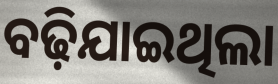
ବଢ଼ିଯାଇଥିଲା